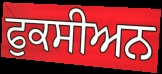
ਫੁਕਸੀਅਨ